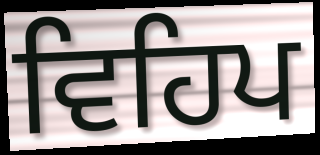
ਵਿਹਿਪ